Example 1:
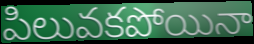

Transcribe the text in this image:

పిలువకపోయినా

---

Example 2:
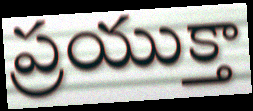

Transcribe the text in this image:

ప్రయుక్తా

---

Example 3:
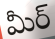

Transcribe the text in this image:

మీర్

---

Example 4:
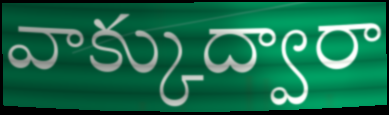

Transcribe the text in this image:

వాక్కుద్వారా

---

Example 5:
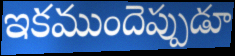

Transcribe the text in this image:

ఇకముందెప్పుడూ